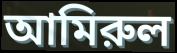
আমিরুল